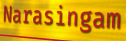
Narasingam